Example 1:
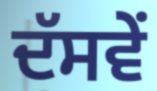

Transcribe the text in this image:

ਦੱਸਵੇਂ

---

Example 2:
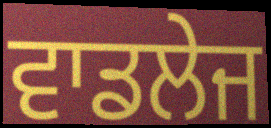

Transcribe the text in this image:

ਵਾਡਲੇਜ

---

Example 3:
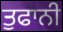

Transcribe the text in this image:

ਤੁਫਾਨੀ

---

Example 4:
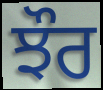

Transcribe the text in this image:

ਝੌਰ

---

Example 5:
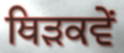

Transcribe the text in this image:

ਥਿੜਕਵੇਂ